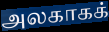
அலகாகக்